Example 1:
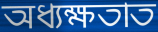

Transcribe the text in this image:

অধ্যক্ষতাত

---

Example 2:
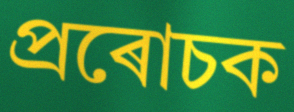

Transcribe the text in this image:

প্ৰৰোচক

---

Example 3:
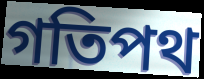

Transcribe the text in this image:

গতিপথ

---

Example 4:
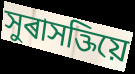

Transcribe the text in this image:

সুৰাসক্তিয়ে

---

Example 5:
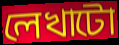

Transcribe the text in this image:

লেখাটো